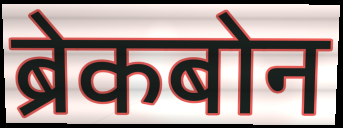
ब्रेकबोन